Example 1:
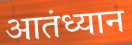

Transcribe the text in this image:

आतंध्यान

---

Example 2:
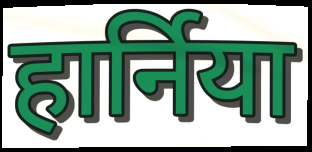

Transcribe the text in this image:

हार्निया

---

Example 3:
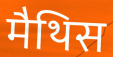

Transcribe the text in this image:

मैथिस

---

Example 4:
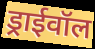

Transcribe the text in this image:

ड्राईवॉल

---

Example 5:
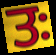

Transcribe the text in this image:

उः